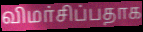
விமர்சிப்பதாக